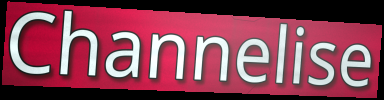
Channelise